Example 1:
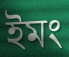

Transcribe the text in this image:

ইমং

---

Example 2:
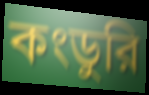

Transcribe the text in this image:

কংডুরি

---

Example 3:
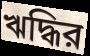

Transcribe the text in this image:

ঋদ্ধির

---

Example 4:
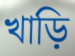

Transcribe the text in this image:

খাড়ি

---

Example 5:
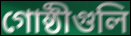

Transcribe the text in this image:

গোষ্ঠীগুলি